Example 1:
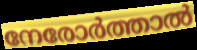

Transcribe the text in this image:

നേരോർത്താൽ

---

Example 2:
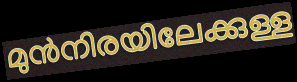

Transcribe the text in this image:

മുൻനിരയിലേക്കുള്ള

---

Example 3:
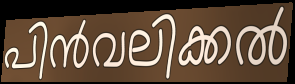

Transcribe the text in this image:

പിൻവലിക്കൽ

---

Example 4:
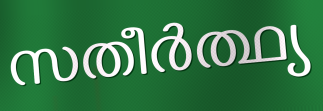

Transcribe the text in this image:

സതീർത്ഥ്യ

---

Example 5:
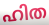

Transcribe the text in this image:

ഹിത